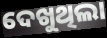
ଦେଖୁଥିଲା